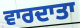
ਵਾਰਦਾਤਾ